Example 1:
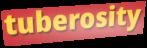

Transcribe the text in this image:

tuberosity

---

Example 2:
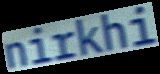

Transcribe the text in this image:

nirkhi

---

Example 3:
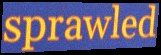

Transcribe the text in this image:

sprawled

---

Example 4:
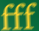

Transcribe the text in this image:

fff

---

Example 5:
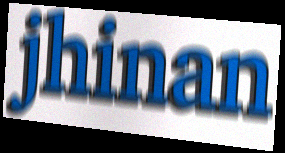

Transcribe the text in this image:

jhinan